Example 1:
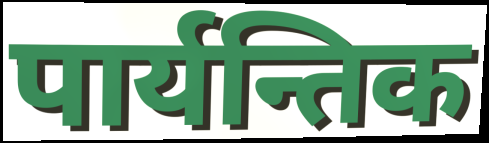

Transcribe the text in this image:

पार्यन्तिक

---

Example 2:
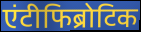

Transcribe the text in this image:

एंटीफिब्रोटिक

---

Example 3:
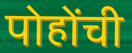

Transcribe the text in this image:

पोहोंची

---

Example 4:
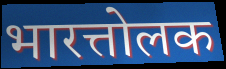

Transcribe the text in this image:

भारत्तोलक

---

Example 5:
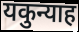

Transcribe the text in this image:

यकुन्याह